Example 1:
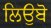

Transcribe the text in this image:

ਲਿਉਬੋ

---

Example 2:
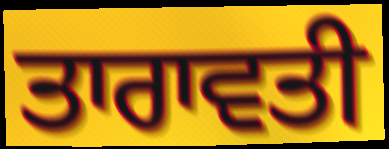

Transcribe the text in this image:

ਤਾਰਾਵਤੀ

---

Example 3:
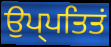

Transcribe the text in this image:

ਉਪ੍ਪਤਿਤਂ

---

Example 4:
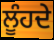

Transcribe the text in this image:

ਲੂੰਹਦੇ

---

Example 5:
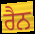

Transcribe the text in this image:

ਰੈਨ